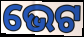
ଭେଟ